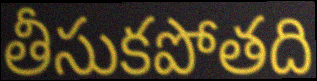
తీసుకపోతది